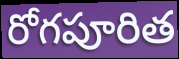
రోగపూరిత